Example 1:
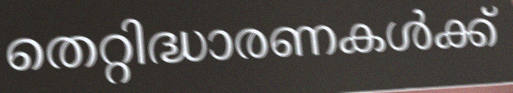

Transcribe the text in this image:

തെറ്റിദ്ധാരണകൾക്ക്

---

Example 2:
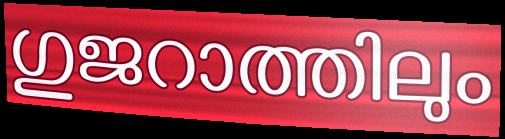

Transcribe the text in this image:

ഗുജറാത്തിലും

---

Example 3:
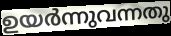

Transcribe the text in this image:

ഉയർന്നുവന്നതു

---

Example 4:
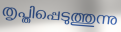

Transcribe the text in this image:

തൃപ്തിപ്പെടുത്തുന്നു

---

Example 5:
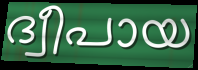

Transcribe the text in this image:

ദ്വീപായ